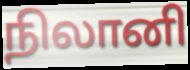
நிலானி